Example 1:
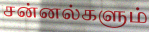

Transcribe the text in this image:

சன்னல்களும்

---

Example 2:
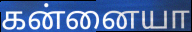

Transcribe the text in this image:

கன்னையா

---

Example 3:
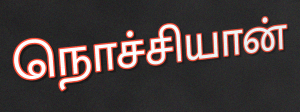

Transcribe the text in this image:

நொச்சியான்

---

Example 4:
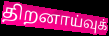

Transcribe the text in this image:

திறனாய்வுக்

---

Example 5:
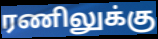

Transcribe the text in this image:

ரணிலுக்கு